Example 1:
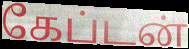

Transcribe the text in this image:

கேப்டன்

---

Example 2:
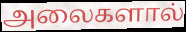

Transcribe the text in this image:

அலைகளால்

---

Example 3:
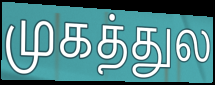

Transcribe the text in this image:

முகத்துல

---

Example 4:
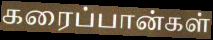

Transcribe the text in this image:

கரைப்பான்கள்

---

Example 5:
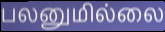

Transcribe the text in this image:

பலனுமில்லை